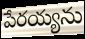
పేరయ్యను